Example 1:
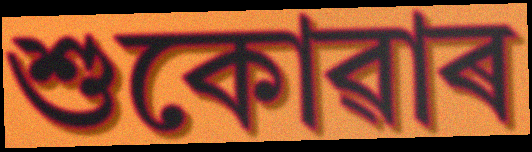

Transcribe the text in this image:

শুকোৱাৰ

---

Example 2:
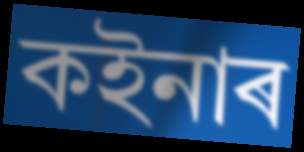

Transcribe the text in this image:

কইনাৰ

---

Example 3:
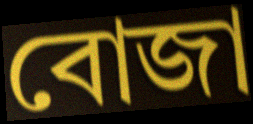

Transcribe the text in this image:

বোজা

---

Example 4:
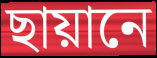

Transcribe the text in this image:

ছায়ানে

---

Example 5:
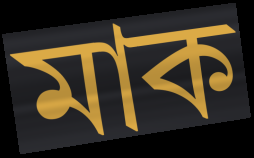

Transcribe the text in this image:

মাক